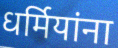
धर्मियांना